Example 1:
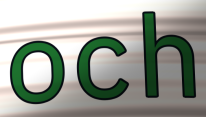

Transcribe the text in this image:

och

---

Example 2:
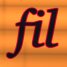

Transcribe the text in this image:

fil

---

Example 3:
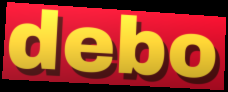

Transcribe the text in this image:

debo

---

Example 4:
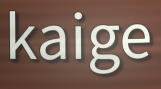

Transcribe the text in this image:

kaige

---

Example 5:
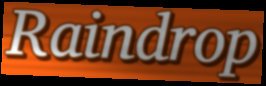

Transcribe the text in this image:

Raindrop